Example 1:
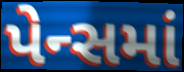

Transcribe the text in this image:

પેન્સમાં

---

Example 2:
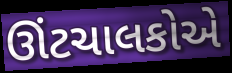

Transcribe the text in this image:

ઊંટચાલકોએ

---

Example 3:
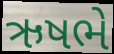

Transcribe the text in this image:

ઋષભે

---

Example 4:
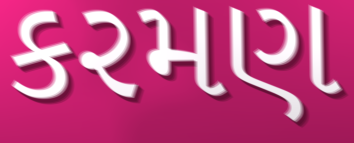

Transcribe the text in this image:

કરમણ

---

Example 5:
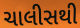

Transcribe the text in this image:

ચાલીસથી